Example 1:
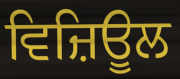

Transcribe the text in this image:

ਵਿਜ਼ਿਊਲ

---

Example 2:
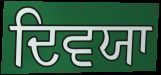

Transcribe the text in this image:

ਦਿਵਯਾ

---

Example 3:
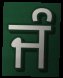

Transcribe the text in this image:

ਜੰ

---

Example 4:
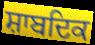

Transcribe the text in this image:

ਸ਼ਾਬਦਿਕ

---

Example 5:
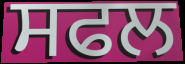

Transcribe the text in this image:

ਸਫਲ